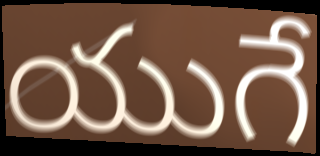
యుగే